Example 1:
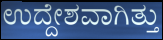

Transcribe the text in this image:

ಉದ್ದೇಶವಾಗಿತ್ತು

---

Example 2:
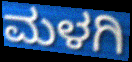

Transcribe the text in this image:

ಮಳಗಿ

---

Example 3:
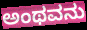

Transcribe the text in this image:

ಅಂಥವನು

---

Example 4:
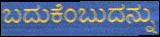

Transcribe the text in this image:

ಬದುಕೆಂಬುದನ್ನು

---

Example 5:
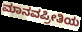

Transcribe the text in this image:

ಮಾನವಪ್ರೀತಿಯ